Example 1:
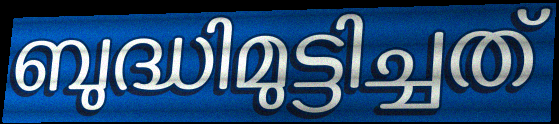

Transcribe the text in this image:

ബുദ്ധിമുട്ടിച്ചത്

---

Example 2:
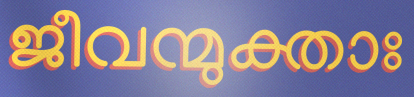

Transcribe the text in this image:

ജീവന്മുക്താഃ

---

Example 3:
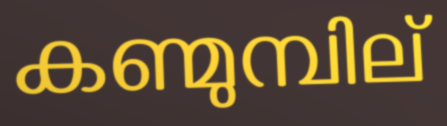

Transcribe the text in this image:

കണ്മുമ്പില്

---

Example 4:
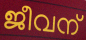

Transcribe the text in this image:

ജീവന്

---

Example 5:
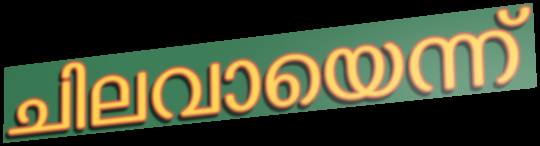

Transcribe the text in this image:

ചിലവായെന്ന്